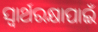
ସ୍ୱାର୍ଥରକ୍ଷାପାଇଁ